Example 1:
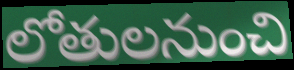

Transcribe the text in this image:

లోతులనుంచి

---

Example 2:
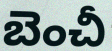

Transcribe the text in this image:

బెంచీ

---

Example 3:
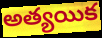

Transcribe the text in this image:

అత్యయిక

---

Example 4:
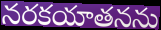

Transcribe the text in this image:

నరకయాతనను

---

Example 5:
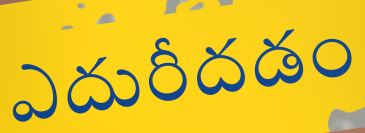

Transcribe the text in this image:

ఎదురీదడం